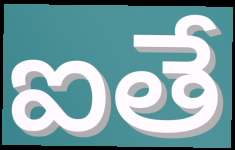
ఐతే